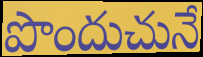
పొందుచునే